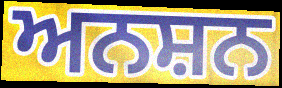
ਅਨਸ਼ਨ